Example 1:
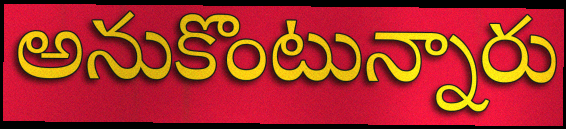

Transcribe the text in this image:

అనుకొంటున్నారు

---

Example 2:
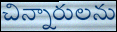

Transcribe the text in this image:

చిన్నారులను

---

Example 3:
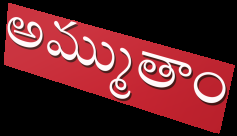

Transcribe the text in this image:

అమ్ముతాం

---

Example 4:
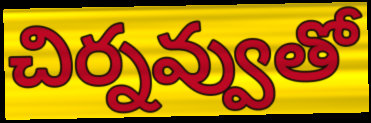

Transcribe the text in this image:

చిర్నవ్వుతో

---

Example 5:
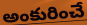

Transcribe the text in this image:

అంకురించే